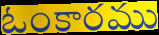
ఓంకారము